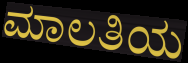
ಮಾಲತಿಯ